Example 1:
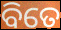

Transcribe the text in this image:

ବିତେ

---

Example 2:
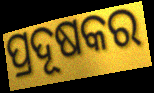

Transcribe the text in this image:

ପ୍ରଦୂଷକର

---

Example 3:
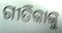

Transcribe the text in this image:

ଗୀତିକାକୁ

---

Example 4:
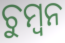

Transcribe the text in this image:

ଚୁମ୍ବନ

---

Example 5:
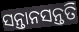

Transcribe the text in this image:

ସନ୍ତାନସନ୍ତତି